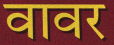
वावर